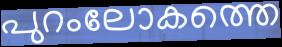
പുറംലോകത്തെ